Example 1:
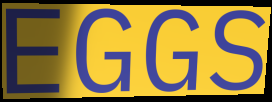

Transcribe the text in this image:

EGGS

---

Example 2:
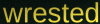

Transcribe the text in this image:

wrested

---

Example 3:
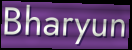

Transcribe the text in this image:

Bharyun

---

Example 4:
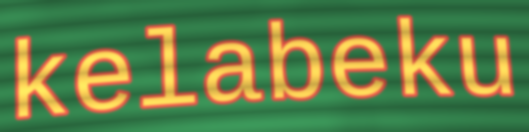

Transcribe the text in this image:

kelabeku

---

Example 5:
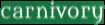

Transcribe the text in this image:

carnivory